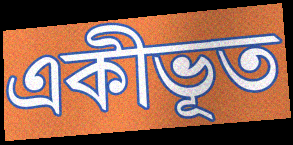
একীভূত